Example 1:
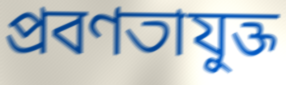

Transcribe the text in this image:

প্রবণতাযুক্ত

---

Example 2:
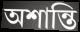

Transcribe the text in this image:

অশান্তি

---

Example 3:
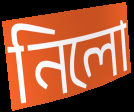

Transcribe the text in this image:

নিলো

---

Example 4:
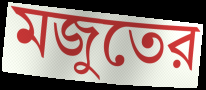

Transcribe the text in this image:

মজুতের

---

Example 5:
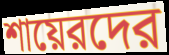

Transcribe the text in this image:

শায়েরদের